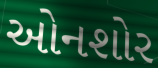
ઓનશોર